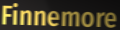
Finnemore